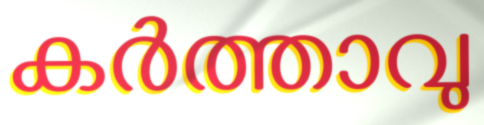
കർത്താവു